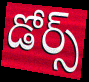
డోర్స్